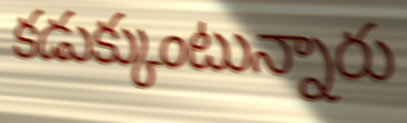
కడుక్కుంటున్నారు